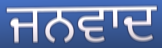
ਜਨਵਾਦ